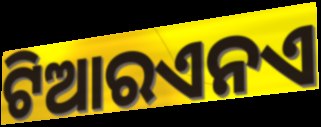
ଟିଆରଏନଏ